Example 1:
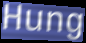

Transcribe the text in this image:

Hung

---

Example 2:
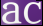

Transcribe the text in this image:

ac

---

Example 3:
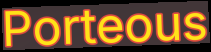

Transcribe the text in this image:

Porteous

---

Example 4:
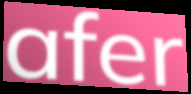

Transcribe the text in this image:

afer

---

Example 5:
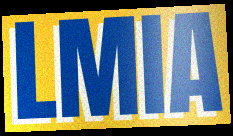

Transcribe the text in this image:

LMIA